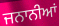
ਜਨਾਨੀਆਂ